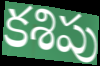
కశిపు